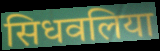
सिधवलिया